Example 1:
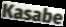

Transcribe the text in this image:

Kasabe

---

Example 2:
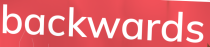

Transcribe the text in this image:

backwards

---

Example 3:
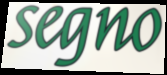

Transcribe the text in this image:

segno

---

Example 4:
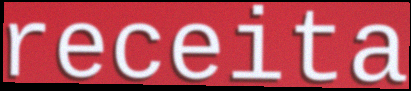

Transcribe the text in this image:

receita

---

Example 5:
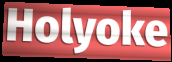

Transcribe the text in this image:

Holyoke